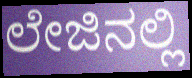
ಲೇಜಿನಲ್ಲಿ